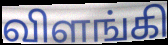
விளங்கி